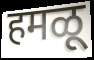
हमळू